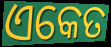
ଏକେତ